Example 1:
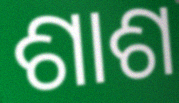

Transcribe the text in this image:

ଶାଶ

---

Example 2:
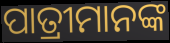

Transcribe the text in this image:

ପାତ୍ରୀମାନଙ୍କ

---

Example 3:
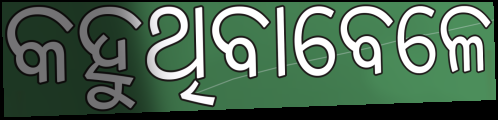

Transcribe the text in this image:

କହୁଥିବାବେଳେ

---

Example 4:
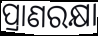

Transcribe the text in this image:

ପ୍ରାଣରକ୍ଷା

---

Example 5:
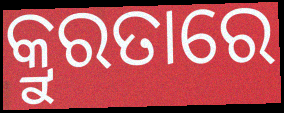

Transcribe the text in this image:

କ୍ରୁରତାରେ